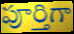
పూర్తిగా